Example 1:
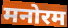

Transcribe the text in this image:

मनोरम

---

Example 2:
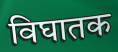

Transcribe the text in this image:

विघातक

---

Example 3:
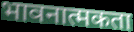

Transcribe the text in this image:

भावनात्मकता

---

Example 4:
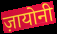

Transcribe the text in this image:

ज़ायोनी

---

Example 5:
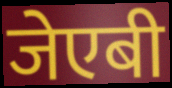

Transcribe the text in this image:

जेएबी